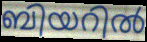
ബിയറിൽ